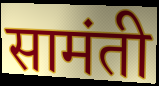
सामंती